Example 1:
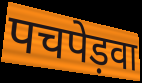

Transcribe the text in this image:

पचपेड़वा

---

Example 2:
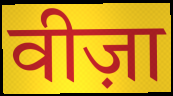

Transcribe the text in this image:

वीज़ा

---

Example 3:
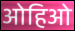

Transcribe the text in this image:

ओहिओ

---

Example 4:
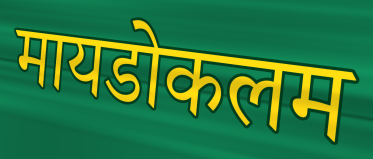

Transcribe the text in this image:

मायडोकलम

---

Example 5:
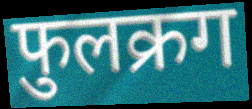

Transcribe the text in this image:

फुलक्रग